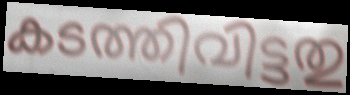
കടത്തിവിട്ടതു